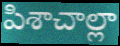
పిశాచాల్లా